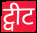
ट्वीट